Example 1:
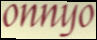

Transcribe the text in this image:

onnyo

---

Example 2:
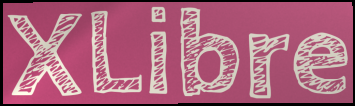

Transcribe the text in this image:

XLibre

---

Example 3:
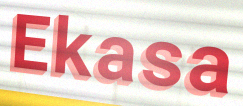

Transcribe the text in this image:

Ekasa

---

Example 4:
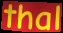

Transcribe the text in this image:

thal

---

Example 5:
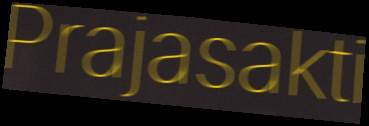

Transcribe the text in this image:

Prajasakti